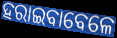
ହରାଇବାବେଳେ